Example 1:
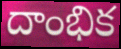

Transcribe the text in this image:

దాంభిక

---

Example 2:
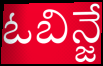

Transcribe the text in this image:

ఓబిన్జే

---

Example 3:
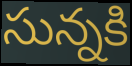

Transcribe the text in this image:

సున్నకి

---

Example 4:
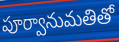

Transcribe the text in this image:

పూర్వానుమతితో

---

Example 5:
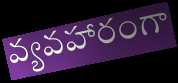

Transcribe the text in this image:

వ్యవహారంగా